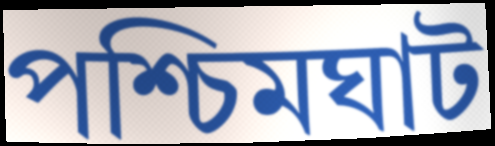
পশ্চিমঘাট